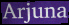
Arjuna